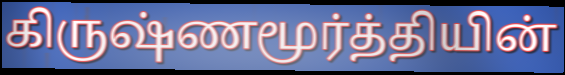
கிருஷ்ணமூர்த்தியின்